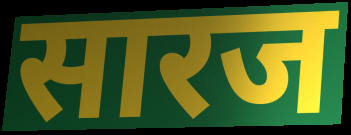
सारज